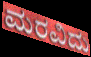
ಮರವಿದು